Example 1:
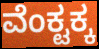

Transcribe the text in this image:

ವೆಂಕ್ಟಕ್ಕ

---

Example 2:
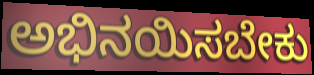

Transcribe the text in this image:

ಅಭಿನಯಿಸಬೇಕು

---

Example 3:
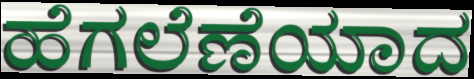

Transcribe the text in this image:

ಹೆಗಲೆಣೆಯಾದ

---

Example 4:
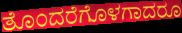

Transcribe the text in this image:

ತೊಂದರೆಗೊಳಗಾದರೂ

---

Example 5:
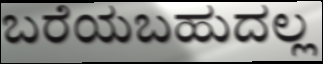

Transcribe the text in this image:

ಬರೆಯಬಹುದಲ್ಲ